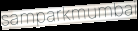
samparkmumbai